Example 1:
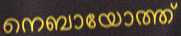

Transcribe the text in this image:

നെബായോത്ത്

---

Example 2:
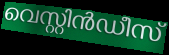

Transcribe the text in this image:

വെസ്റ്റിൻഡീസ്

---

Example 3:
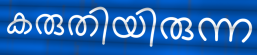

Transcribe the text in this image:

കരുതിയിരുന്ന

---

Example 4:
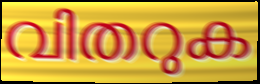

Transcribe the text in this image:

വിതറുക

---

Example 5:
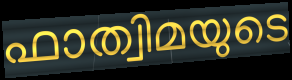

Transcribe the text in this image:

ഫാത്വിമയുടെ